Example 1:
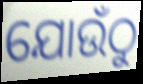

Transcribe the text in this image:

ଯୋଉଁଠୁ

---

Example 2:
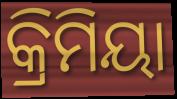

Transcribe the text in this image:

କ୍ରିମିୟା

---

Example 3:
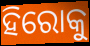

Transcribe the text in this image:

ହିରୋକୁ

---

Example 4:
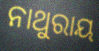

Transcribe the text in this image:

ନାଥୁରାୟ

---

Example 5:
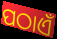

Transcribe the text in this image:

ପଠାଏଁ